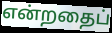
என்றதைப்